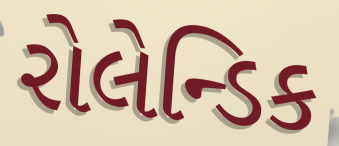
રોલેન્ડિક